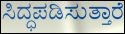
ಸಿದ್ಧಪಡಿಸುತ್ತಾರೆ